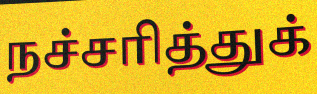
நச்சரித்துக்